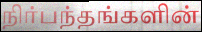
நிர்பந்தங்களின்